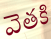
వెతకి